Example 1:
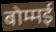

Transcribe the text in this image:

बोम्मई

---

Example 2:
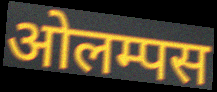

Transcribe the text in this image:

ओलम्पस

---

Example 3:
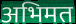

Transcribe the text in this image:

अभिमत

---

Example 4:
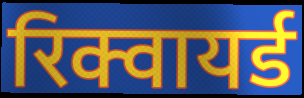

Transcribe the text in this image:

रिक्वायर्ड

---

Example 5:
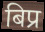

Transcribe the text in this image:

बिप्र